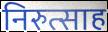
निरुत्साह